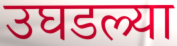
उघडल्या